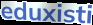
eduxisti